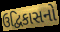
ઉદ્વિકાસનો